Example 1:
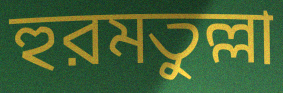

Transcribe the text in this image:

হুরমতুল্লা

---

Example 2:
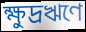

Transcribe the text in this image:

ক্ষুদ্রঋণে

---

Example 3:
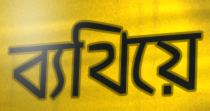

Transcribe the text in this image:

ব্যথিয়ে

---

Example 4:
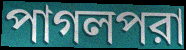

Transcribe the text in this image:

পাগলপরা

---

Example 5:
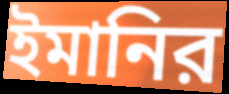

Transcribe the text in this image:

ইমানির